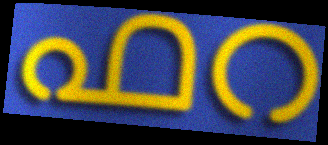
ഫറ